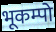
भूकम्पो